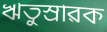
ঋতুস্ৰাৱক